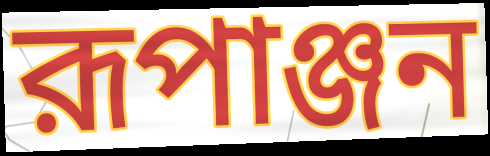
রূপাঞ্জন